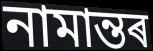
নামান্তৰ